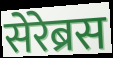
सेरेब्रस